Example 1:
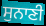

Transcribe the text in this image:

ਸੁਨਾਣੀ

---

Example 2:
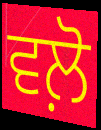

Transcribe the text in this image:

ਵਲ਼ੋ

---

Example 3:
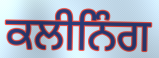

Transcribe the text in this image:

ਕਲੀਨਿੰਗ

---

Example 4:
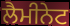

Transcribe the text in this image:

ਲੈਮੀਨੇਟ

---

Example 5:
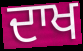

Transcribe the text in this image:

ਦਾਖ